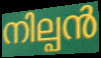
നില്പൻ